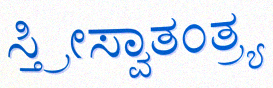
ಸ್ತ್ರೀಸ್ವಾತಂತ್ರ್ಯ